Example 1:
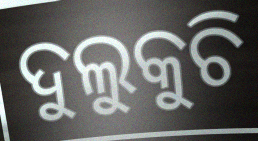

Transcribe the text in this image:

ଦୁଲୁକୁଚି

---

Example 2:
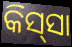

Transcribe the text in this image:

କିସ୍‍ସା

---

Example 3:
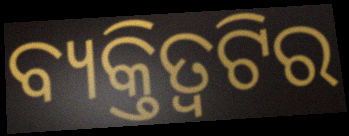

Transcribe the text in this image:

ବ୍ୟକ୍ତିତ୍ୱଟିର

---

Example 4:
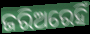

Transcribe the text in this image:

ଜରିଅରେହିଁ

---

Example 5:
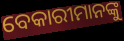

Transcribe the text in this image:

ବେକାରୀମାନଙ୍କୁ